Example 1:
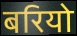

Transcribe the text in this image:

बरियो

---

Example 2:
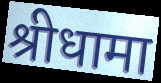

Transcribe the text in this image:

श्रीधामा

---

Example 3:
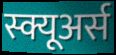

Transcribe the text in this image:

स्क्यूअर्स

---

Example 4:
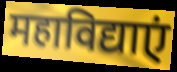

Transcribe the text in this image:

महाविद्याएं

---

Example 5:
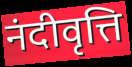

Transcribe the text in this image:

नंदीवृत्ति